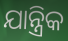
ଯାନ୍ତ୍ରିକ